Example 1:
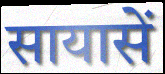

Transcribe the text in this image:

सायासें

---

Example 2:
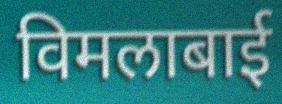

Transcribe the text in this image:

विमलाबाई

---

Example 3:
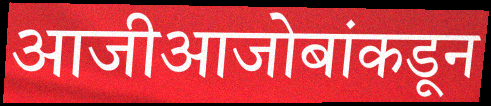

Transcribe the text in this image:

आजीआजोबांकडून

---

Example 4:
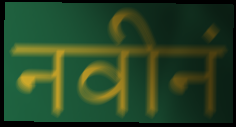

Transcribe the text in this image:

नवीनं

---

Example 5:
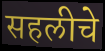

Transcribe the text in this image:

सहलीचे